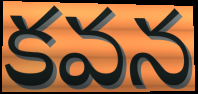
కవన